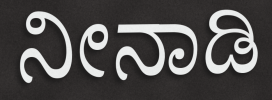
ನೀನಾಡಿ